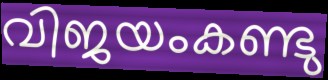
വിജയംകണ്ടു